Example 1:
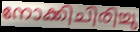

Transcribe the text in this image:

നോക്കിചിരിച്ചു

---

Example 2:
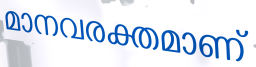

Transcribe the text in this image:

മാനവരക്തമാണ്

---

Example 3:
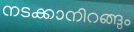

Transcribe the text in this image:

നടക്കാനിറങ്ങും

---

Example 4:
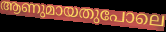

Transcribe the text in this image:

ആണുമായതുപോലെ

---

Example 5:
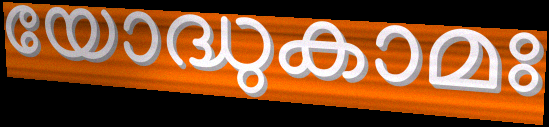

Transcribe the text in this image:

യോദ്ധുകാമഃ